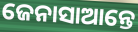
ଜେନାସାଆନ୍ତେ